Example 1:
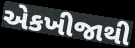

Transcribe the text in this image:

એકખીજાથી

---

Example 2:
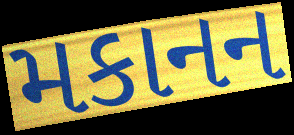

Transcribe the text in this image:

મકાનન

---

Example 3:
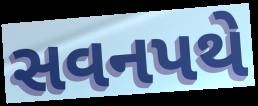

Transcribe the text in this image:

સવનપથે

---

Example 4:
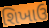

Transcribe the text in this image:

શિખાઉ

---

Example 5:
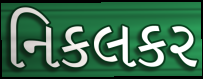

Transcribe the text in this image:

નિકલકર